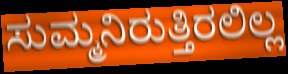
ಸುಮ್ಮನಿರುತ್ತಿರಲಿಲ್ಲ